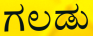
ಗಲಡು